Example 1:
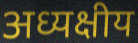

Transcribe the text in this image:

अध्यक्षीय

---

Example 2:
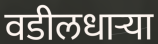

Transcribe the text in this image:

वडीलधार्‍या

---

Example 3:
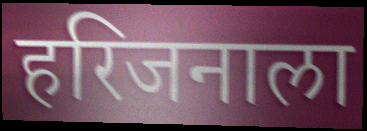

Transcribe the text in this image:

हरिजनाला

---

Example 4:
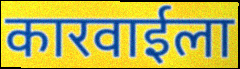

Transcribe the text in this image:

कारवाईला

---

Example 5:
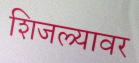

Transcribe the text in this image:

शिजल्यावर